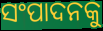
ସଂପାଦନକୁ